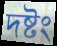
দষ্টং